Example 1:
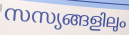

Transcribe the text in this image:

സസ്യങ്ങളിലും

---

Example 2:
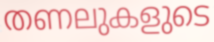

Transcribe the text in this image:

തണലുകളുടെ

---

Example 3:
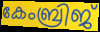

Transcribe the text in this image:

കേംബ്രിജ്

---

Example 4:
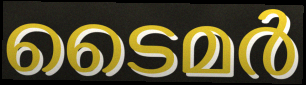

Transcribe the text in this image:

ടൈമർ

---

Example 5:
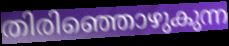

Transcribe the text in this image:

തിരിഞ്ഞൊഴുകുന്ന